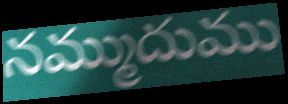
నమ్ముదుము